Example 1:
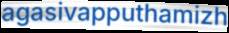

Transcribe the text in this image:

agasivapputhamizh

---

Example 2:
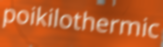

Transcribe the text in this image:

poikilothermic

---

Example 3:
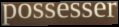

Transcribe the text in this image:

possesser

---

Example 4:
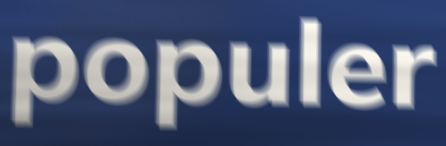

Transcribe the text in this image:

populer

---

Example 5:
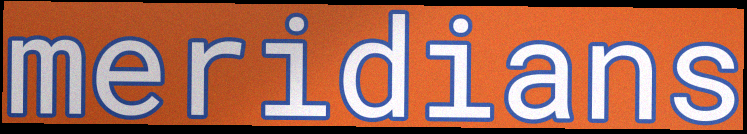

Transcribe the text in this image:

meridians